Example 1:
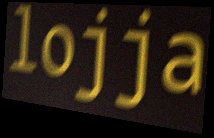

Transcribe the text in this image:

lojja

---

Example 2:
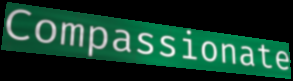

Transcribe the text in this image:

Compassionate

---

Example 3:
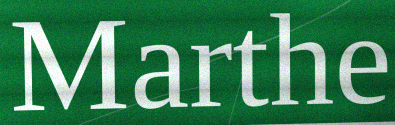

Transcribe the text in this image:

Marthe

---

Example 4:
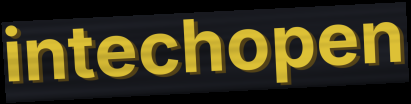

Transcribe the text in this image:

intechopen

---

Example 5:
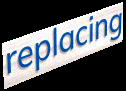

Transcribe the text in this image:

replacing